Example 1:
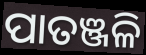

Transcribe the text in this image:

ପାତଞ୍ଜଳି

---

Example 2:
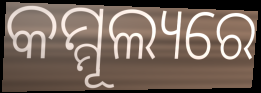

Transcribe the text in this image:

କମ୍ମୂଲ୍ୟରେ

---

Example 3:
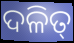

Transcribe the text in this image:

ଦଳିତ୍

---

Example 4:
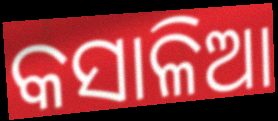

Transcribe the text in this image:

କସାଳିଆ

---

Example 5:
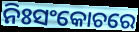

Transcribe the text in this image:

ନିଃସଂକୋଚରେ